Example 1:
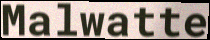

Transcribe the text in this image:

Malwatte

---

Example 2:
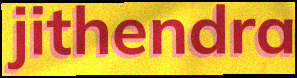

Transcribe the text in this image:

jithendra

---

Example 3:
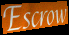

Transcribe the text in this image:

Escrow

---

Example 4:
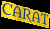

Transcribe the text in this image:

CARAT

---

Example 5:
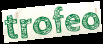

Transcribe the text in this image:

trofeo